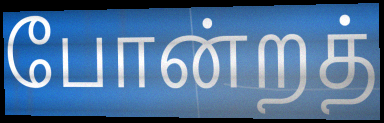
போன்றத்